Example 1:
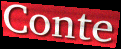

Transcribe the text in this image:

Conte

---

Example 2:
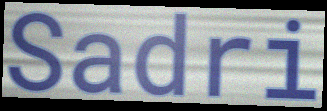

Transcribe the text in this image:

Sadri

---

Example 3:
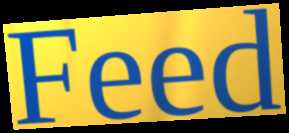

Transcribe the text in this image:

Feed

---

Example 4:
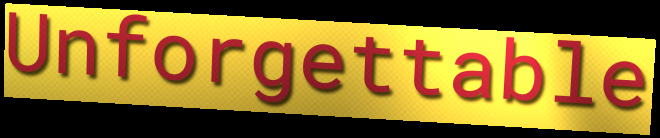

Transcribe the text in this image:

Unforgettable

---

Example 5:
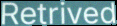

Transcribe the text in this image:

Retrived